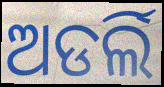
ଅଡର୍ଲି